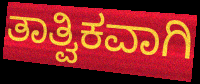
ತಾತ್ವಿಕವಾಗಿ